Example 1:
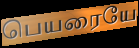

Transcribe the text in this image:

பெயரையே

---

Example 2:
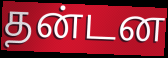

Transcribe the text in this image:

தன்டன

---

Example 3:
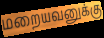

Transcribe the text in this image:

மறையவனுக்கு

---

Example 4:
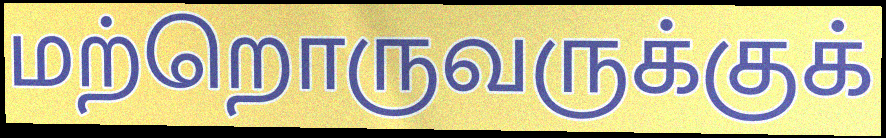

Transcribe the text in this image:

மற்றொருவருக்குக்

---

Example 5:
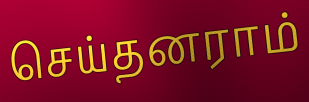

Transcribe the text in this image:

செய்தனராம்